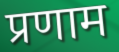
प्रणाम